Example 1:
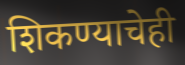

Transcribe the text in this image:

शिकण्याचेही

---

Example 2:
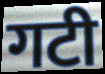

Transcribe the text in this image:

गटी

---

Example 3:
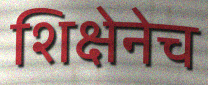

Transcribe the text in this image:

शिक्षेनेच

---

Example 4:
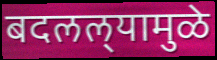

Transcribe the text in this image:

बदलल्यामुळे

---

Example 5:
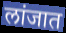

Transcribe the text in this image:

लांजात